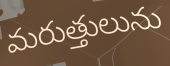
మరుత్తులును